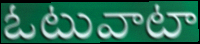
ఓటువాటా